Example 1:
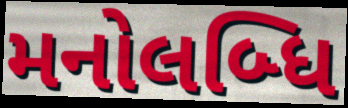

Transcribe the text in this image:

મનોલબ્ધિ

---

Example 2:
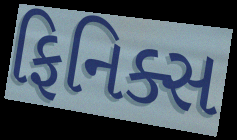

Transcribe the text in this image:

ફિનિક્સ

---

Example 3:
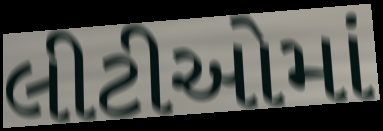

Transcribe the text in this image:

લીટીઓમાં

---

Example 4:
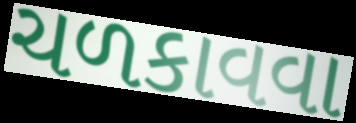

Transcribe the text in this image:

ચળકાવવા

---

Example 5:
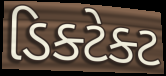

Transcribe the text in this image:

ડિક્ટેક્ટ